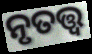
ନୃତତ୍ତ୍ୱ